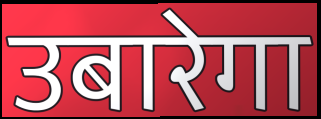
उबारेगा